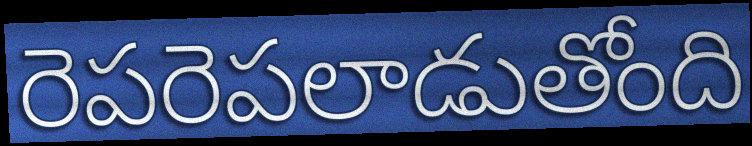
రెపరెపలాడుతోంది